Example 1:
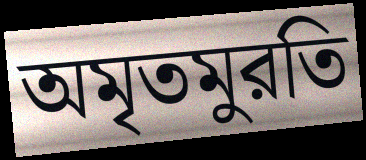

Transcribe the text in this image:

অমৃতমুরতি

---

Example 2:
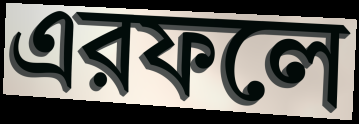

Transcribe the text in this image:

এরফলে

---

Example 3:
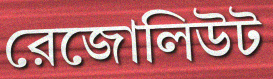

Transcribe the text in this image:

রেজোলিউট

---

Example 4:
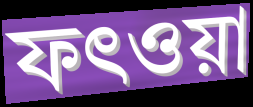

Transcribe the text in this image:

ফৎওয়া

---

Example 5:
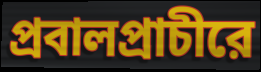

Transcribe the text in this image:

প্রবালপ্রাচীরে